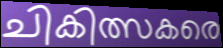
ചികിത്സകരെ